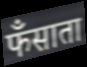
फँसाता